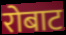
रोबाट